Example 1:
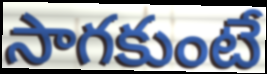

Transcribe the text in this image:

సాగకుంటే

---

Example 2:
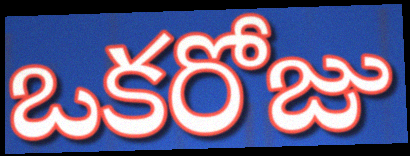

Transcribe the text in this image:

ఒకరోజు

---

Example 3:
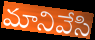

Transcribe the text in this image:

మానివేసి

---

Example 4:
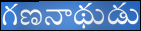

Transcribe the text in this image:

గణనాథుడు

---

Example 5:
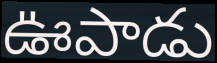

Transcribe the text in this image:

ఊపాడు